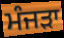
ਮੰਜੜਾ